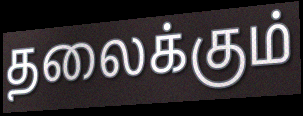
தலைக்கும்